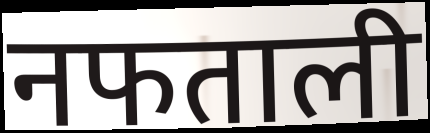
नफताली